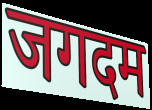
जगदम